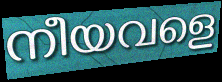
നീയവളെ